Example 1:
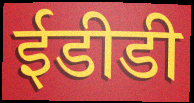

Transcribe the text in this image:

ईडीडी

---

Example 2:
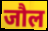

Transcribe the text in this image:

जौल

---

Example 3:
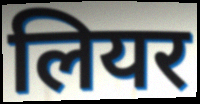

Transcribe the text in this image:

लियर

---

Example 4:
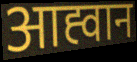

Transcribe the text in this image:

आह्वान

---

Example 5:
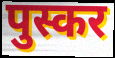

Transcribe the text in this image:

पुस्कर